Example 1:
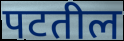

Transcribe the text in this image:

पटतील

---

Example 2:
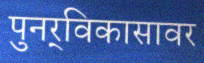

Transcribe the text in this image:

पुनर्विकासावर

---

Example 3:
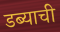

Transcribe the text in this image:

डब्याची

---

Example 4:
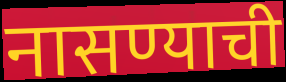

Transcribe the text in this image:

नासण्याची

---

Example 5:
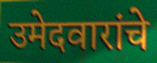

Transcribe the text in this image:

उमेदवारांचे